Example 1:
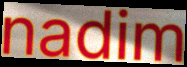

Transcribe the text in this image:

nadim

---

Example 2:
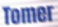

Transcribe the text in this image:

Tomer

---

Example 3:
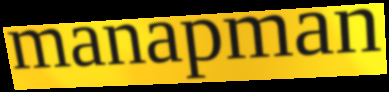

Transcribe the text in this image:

manapman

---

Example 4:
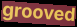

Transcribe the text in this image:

grooved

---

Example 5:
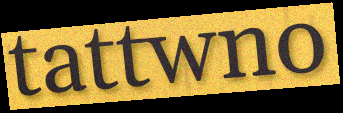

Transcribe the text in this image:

tattwno